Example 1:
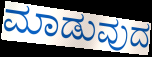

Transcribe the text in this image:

ಮಾಡುವುದ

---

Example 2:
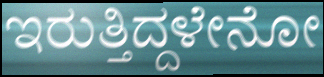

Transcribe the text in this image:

ಇರುತ್ತಿದ್ದಳೇನೋ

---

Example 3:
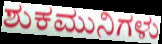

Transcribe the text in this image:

ಶುಕಮುನಿಗಳು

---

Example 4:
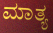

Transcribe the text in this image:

ಮಾತ್ಯ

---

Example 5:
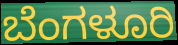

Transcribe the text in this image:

ಬೆಂಗಳೂರಿ